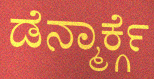
ಡೆನ್ಮಾರ್ಕ್ಗೆ